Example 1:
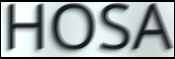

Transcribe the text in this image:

HOSA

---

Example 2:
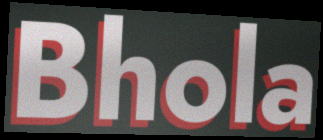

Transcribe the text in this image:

Bhola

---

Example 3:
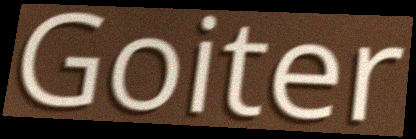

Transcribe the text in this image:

Goiter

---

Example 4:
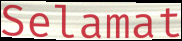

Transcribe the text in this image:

Selamat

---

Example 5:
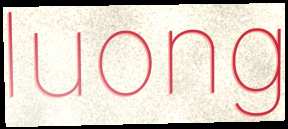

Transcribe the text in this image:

luong